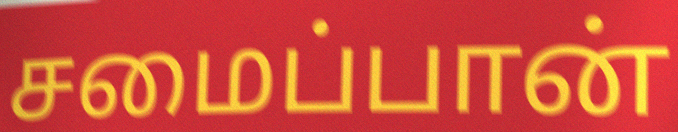
சமைப்பான்